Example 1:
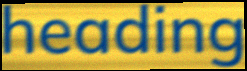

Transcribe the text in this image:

heading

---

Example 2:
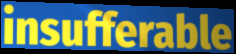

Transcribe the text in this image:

insufferable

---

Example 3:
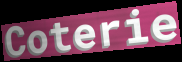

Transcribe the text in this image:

Coterie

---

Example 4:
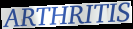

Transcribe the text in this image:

ARTHRITIS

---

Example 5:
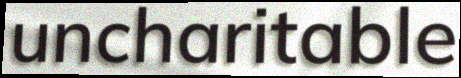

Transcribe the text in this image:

uncharitable